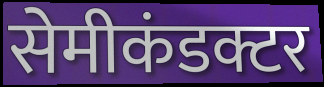
सेमीकंडक्टर